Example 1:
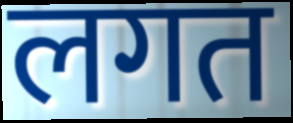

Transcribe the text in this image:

लगत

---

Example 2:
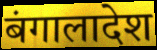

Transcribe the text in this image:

बंगालादेश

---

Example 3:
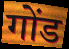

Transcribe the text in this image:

गोंड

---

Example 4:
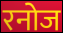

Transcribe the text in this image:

रनोज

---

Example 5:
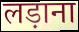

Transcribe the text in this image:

लड़ाना